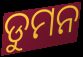
ଡୁମନ